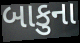
બાકુના